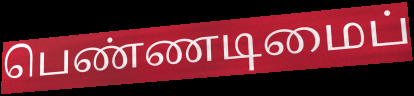
பெண்ணடிமைப்